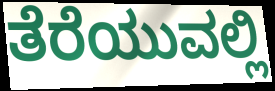
ತೆರೆಯುವಲ್ಲಿ